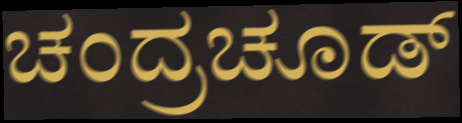
ಚಂದ್ರಚೂಡ್